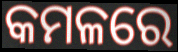
କମଳରେ